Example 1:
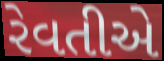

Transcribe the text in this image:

રેવતીએ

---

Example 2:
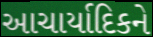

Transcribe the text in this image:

આચાર્યાદિકને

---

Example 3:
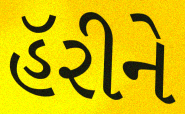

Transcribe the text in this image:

હૅરીને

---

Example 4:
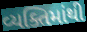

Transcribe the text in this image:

વ્યક્તિમાંથી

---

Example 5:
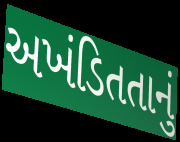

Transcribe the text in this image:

અખંડિતતાનું